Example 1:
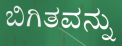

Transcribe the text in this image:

ಬಿಗಿತವನ್ನು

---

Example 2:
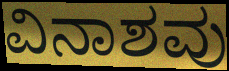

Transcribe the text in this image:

ವಿನಾಶವು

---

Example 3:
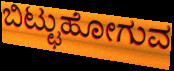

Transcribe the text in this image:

ಬಿಟ್ಟುಹೋಗುವ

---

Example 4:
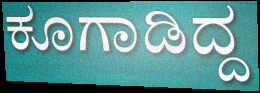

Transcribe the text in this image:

ಕೂಗಾಡಿದ್ದ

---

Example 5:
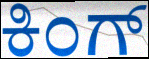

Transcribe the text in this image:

ಕಿಂಗ್